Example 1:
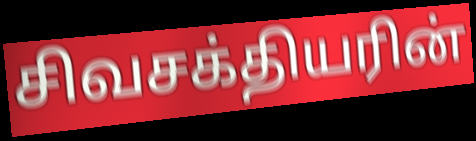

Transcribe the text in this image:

சிவசக்தியரின்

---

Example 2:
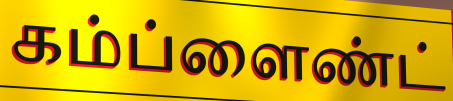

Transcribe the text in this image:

கம்ப்ளைண்ட்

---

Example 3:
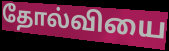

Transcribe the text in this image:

தோல்வியை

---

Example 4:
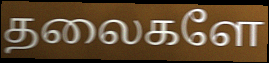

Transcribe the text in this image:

தலைகளே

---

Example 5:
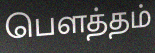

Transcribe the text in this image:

பௌத்தம்